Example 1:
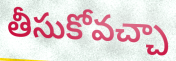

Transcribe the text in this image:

తీసుకోవచ్చా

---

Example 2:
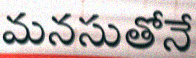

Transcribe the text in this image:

మనసుతోనే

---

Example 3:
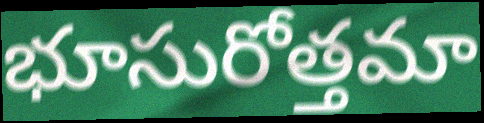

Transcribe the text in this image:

భూసురోత్తమా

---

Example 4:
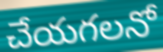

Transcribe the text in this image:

చేయగలనో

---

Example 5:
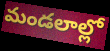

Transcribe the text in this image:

మండలాల్లో